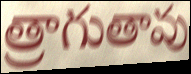
త్రాగుతావు